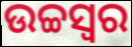
ଉଚ୍ଚସ୍ବର